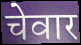
चेवार